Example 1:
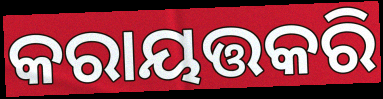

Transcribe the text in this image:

କରାୟତ୍ତକରି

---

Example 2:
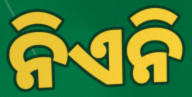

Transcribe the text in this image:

ନିଏନି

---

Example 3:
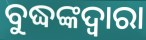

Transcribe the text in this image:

ବୁଦ୍ଧଙ୍କଦ୍ଵାରା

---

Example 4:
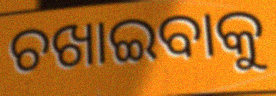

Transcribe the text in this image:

ଚଖାଇବାକୁ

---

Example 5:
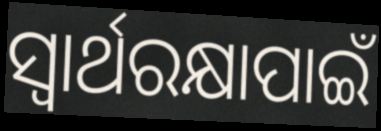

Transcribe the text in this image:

ସ୍ବାର୍ଥରକ୍ଷାପାଇଁ